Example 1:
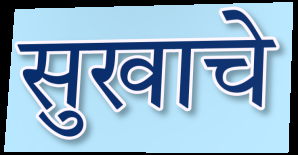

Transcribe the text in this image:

सुखाचे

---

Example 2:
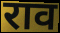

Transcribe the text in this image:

राव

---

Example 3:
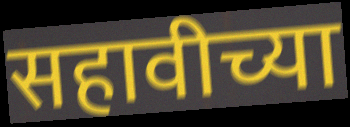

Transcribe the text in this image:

सहावीच्या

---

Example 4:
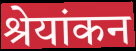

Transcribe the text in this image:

श्रेयांकन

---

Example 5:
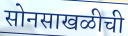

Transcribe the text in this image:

सोनसाखळीची